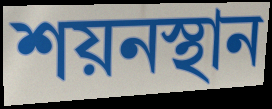
শয়নস্থান